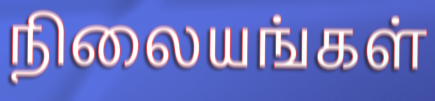
நிலையங்கள்